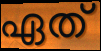
ഏത്